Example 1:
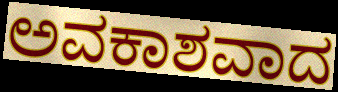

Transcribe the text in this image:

ಅವಕಾಶವಾದ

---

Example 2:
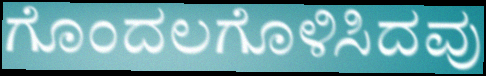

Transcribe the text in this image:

ಗೊಂದಲಗೊಳಿಸಿದವು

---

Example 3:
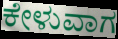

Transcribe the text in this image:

ಕೇಳುವಾಗ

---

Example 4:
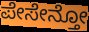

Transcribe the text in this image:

ಪೇಸೇನ್ತೋ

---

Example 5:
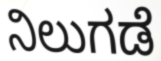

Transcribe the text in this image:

ನಿಲುಗಡೆ